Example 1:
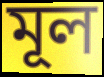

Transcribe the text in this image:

মূল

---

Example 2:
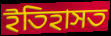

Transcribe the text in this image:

ইতিহাসত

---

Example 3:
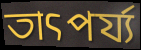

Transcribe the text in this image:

তাৎপৰ্য্য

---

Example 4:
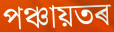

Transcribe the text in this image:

পঞ্চায়তৰ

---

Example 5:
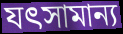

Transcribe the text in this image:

যৎসামান্য